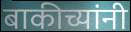
बाकीच्यांनी